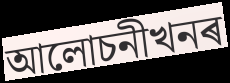
আলোচনীখনৰ